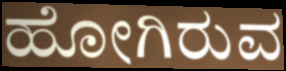
ಹೋಗಿರುವ